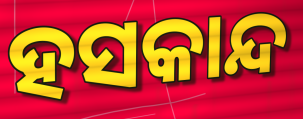
ହସକାନ୍ଦ